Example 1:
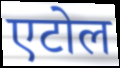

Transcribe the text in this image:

एटोल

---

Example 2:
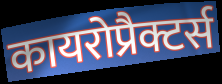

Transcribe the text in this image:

कायरोप्रैक्टर्स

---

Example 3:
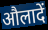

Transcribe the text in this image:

औलादें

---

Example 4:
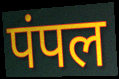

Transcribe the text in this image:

पंपल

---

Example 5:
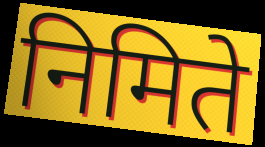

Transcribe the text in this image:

निमिते